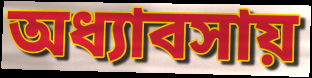
অধ্যাবসায়